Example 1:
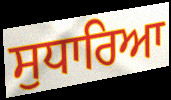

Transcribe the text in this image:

ਸੁਧਾਰਿਆ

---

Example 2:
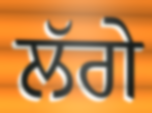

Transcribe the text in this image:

ਲੱਗੇ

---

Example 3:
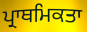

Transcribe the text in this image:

ਪ੍ਰਾਥਮਿਕਤਾ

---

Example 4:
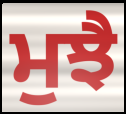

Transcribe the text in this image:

ਮੁਝੈ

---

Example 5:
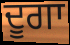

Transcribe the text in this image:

ਦੂਗਾ